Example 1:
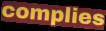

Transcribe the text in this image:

complies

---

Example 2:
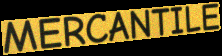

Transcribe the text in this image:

MERCANTILE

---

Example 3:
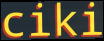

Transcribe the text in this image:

ciki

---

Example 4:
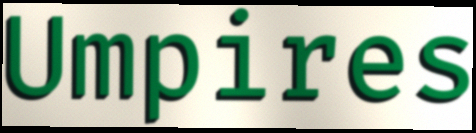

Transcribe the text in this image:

Umpires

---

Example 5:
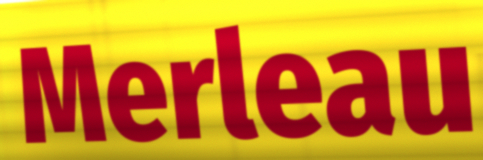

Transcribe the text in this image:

Merleau